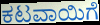
ಕಟವಾಯಿಗೆ